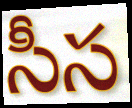
సీస